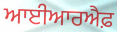
ਆਈਆਰਐਫ਼